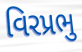
વિરપ્રભુ